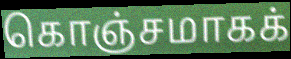
கொஞ்சமாகக்